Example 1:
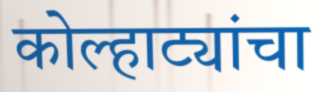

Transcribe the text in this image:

कोल्हाट्यांचा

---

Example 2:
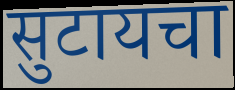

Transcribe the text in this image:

सुटायचा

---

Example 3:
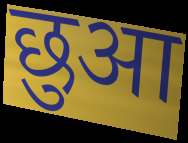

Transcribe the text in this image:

छुआ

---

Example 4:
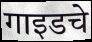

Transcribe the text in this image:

गाइडचे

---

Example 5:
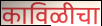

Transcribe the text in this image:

काविळीचा